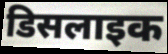
डिसलाइक